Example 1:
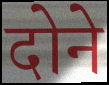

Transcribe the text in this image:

दोने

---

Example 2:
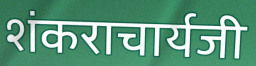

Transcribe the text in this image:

शंकराचार्यजी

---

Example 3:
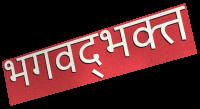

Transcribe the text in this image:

भगवद्भक्त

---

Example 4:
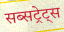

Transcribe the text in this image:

सब्सट्रेट्स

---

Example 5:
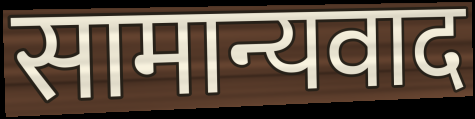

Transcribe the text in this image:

सामान्यवाद